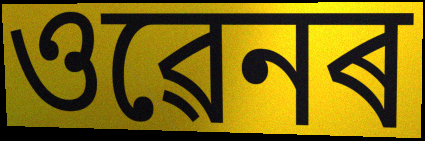
ওৱেনৰ